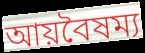
আয়বৈষম্য